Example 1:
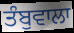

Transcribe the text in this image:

ਤੰਬੁਵਾਲਾ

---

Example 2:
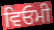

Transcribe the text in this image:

ਵਿਓਮੀ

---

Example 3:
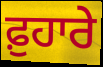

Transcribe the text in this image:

ਫ਼ੁਹਾਰੇ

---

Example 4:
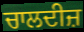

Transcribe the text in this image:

ਚਾਲਦੀਜ਼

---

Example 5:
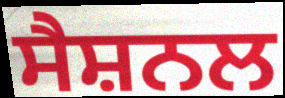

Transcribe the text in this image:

ਸੈਸ਼ਨਲ